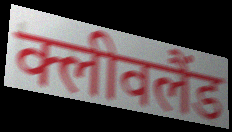
क्लीवलैंड